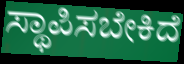
ಸ್ಥಾಪಿಸಬೇಕಿದೆ